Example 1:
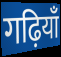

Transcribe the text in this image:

गढ़ियाँ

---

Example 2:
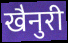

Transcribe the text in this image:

खैनुरी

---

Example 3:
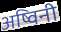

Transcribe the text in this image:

अष्विनी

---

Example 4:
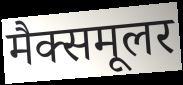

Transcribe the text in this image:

मैक्समूलर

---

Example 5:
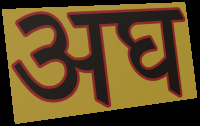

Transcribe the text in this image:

अघ